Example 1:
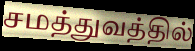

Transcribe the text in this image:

சமத்துவத்தில்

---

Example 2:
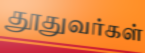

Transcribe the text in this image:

தூதுவர்கள்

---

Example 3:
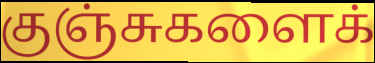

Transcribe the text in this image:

குஞ்சுகளைக்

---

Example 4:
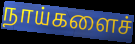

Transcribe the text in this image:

நாய்களைச்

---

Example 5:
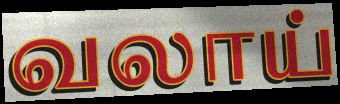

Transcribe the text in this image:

வலாய்